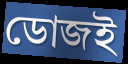
ডোজই